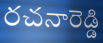
రచనారెడ్డి